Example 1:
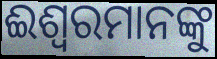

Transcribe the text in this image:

ଈଶ୍ୱରମାନଙ୍କୁ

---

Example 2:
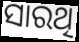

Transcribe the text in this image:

ସାରଥି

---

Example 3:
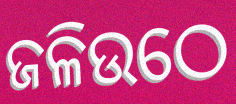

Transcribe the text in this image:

ଜଳିଉଠେ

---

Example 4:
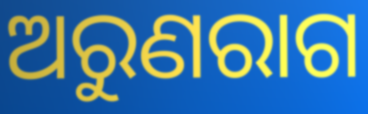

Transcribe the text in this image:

ଅରୁଣରାଗ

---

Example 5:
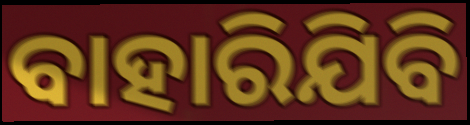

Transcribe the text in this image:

ବାହାରିଯିବି